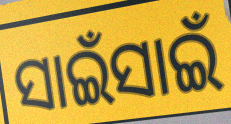
ସାଇଁସାଇଁ